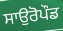
ਸਾਉਰੋਪੌਡ